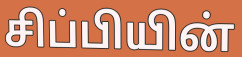
சிப்பியின்